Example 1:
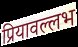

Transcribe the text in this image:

प्रियावल्लभ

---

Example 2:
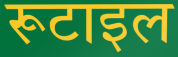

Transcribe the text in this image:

रूटाइल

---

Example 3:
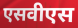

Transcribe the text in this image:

एसवीएस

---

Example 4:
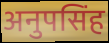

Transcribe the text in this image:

अनुपसिंह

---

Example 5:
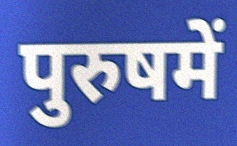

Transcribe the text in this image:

पुरुषमें